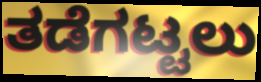
ತಡೆಗಟ್ಟಲು